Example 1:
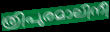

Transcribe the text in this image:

ത്രിപുരമാലിനീ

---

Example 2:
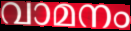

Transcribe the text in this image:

വാമനം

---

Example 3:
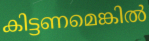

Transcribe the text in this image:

കിട്ടണമെങ്കിൽ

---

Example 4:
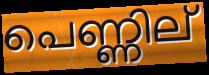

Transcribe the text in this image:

പെണ്ണില്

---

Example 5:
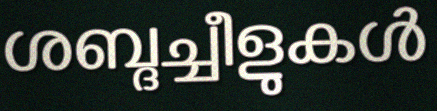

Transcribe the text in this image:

ശബ്ദച്ചീളുകൾ